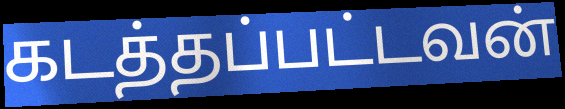
கடத்தப்பட்டவன்